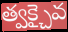
త్వక్చైవ